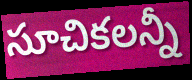
సూచికలన్నీ